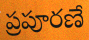
ప్రపూరణే